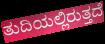
ತುದಿಯಲ್ಲಿರುತ್ತದೆ